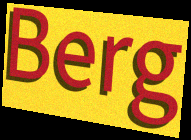
Berg